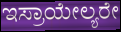
ಇಸ್ರಾಯೇಲ್ಯರೇ